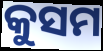
କୁସମ